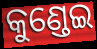
କୁଣ୍ଡେଇ